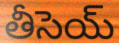
తీసెయ్